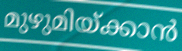
മുഴുമിയ്ക്കാൻ